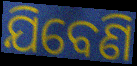
ଯିବେଣି